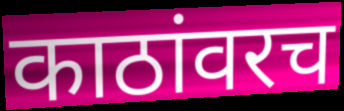
काठांवरच